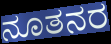
ನೂತನರ